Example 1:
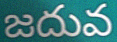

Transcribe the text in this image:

జదువ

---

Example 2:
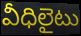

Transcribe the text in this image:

వీధిలైటు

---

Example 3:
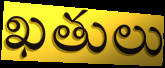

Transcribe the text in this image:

ఖతులు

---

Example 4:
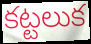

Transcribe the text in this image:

కట్టలుక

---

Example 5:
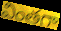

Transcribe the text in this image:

వింతగా